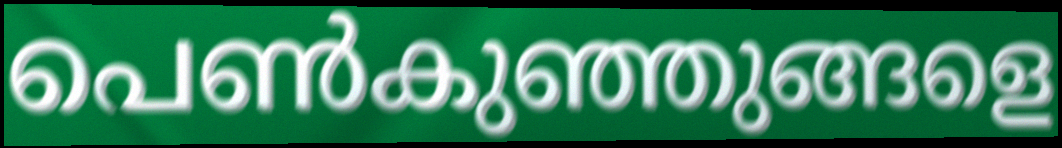
പെൺകുഞ്ഞുങ്ങളെ